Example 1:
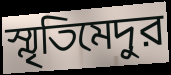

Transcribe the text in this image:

স্মৃতিমেদুর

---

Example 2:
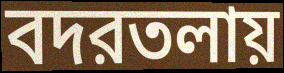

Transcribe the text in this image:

বদরতলায়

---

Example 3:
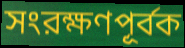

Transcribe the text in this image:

সংরক্ষণপূর্বক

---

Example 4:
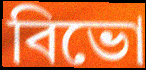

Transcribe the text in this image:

বিভো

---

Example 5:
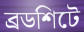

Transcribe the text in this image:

ব্রডশিটে